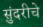
सुंदरीचे